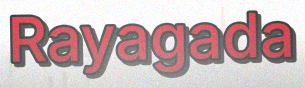
Rayagada